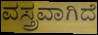
ವಸ್ತ್ರವಾಗಿದೆ